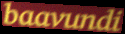
baavundi